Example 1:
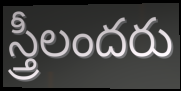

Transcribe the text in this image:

స్త్రీలందరు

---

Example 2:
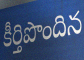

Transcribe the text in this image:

కీర్తిపొందిన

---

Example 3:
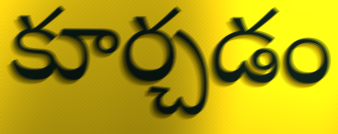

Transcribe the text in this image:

కూర్చడం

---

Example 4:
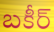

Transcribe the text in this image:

బకీర్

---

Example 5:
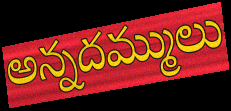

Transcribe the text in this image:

అన్నదమ్ములు